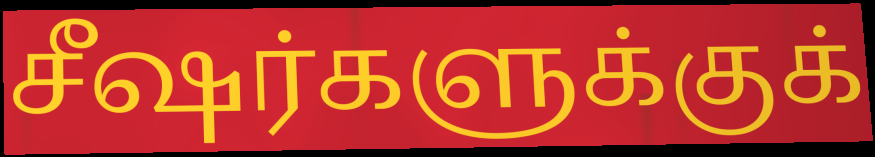
சீஷர்களுக்குக்